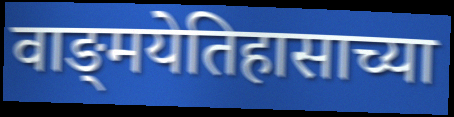
वाङ्‌मयेतिहासाच्या